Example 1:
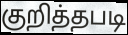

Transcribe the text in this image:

குறித்தபடி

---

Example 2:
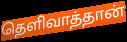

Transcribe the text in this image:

தெளிவாத்தான்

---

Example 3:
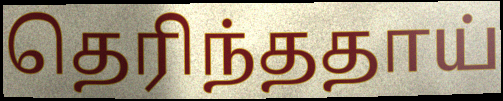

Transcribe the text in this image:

தெரிந்ததாய்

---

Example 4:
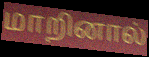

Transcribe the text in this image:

மாறினால்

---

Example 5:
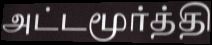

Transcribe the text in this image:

அட்டமூர்த்தி